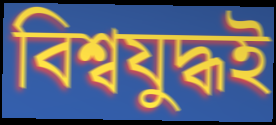
বিশ্বযুদ্ধই